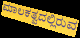
ಮಾಲಕತ್ವದಲ್ಲಿರುವ